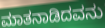
ಮಾತನಾಡಿದವನು